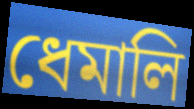
ধেমালি